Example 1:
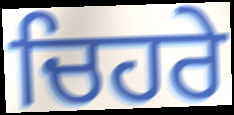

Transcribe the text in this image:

ਚਿਹਰੇ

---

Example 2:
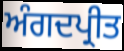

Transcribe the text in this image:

ਅੰਗਦਪ੍ਰੀਤ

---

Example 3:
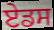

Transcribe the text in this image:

ਏਡਸ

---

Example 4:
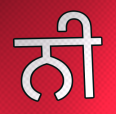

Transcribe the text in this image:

ਨੀ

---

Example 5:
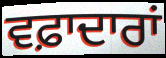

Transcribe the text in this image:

ਵਫ਼ਾਦਾਰਾਂ